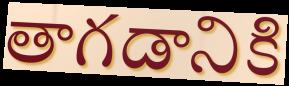
తాగడానికి